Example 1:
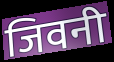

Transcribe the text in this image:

जिवनी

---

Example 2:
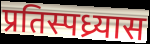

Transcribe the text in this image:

प्रतिस्पध्र्यास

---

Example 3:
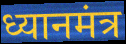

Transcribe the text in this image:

ध्यानमंत्र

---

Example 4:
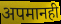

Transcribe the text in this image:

अपमानही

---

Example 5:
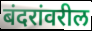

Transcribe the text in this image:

बंदरांवरील